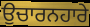
ਉਚਾਰਨਹਾਰੇ